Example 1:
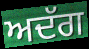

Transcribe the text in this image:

ਅਦੱਗ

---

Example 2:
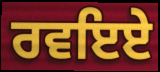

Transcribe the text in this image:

ਰਵਇਏ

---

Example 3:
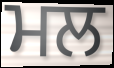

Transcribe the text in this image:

ਮਲ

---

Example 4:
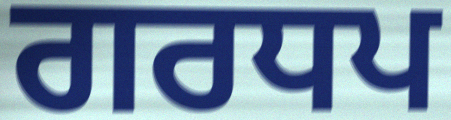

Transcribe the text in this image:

ਗਰਧਪ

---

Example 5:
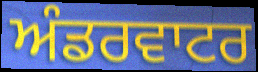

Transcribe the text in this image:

ਅੰਡਰਵਾਟਰ